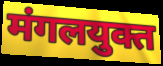
मंगलयुक्त